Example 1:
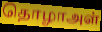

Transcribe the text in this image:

தொழாஅள்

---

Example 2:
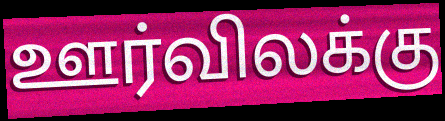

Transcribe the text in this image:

ஊர்விலக்கு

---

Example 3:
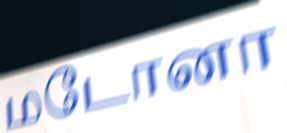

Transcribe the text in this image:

மடோனா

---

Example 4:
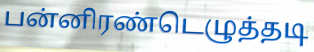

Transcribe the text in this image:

பன்னிரண்டெழுத்தடி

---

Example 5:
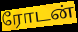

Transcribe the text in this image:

ரோடன்